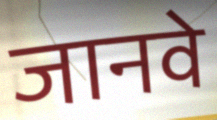
जानवे